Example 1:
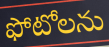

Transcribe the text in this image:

ఫోటోలను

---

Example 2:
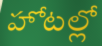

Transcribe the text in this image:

హోటల్లో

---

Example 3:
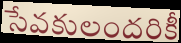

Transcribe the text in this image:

సేవకులందరికీ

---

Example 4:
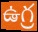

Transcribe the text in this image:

ఉగ్ర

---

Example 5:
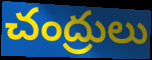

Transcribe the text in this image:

చంద్రులు